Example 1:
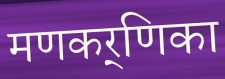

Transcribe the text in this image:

मणकर्णिका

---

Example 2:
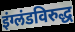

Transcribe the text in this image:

इंग्लंडविरुद्ध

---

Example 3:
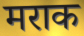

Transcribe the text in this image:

मराक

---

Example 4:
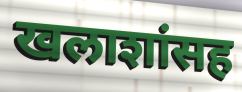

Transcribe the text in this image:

खलाशांसह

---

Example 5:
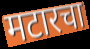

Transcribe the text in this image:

मटारचा